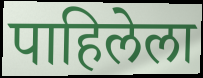
पाहिलेला